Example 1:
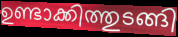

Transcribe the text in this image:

ഉണ്ടാക്കിത്തുടങ്ങി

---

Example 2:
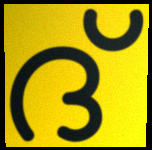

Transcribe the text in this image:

ദ്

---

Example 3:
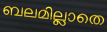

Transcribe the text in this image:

ബലമില്ലാതെ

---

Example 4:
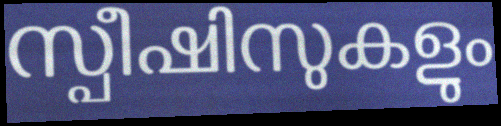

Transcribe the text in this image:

സ്പീഷിസുകളും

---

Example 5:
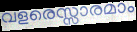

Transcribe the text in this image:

വളരെസ്സാരമാം